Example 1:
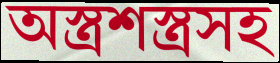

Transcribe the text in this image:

অস্ত্রশস্ত্রসহ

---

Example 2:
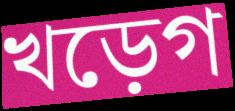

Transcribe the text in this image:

খড়েগ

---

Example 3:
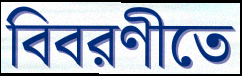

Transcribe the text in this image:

বিবরণীতে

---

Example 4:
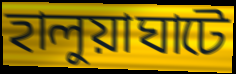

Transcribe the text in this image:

হালুয়াঘাটে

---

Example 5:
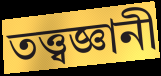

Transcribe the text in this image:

তত্ত্বজ্ঞানী